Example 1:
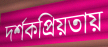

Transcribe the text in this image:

দর্শকপ্রিয়তায়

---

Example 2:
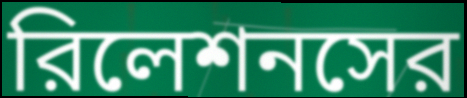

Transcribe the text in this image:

রিলেশনসের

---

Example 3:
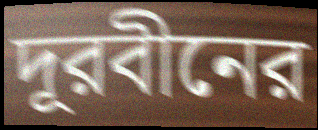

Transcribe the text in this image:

দূরবীনের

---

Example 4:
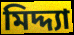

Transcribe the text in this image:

মিদ্দ্যা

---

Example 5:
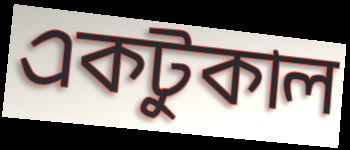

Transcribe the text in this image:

একটুকাল